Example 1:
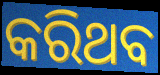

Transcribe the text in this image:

କରିଥବ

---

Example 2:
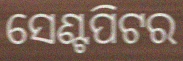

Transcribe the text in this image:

ସେଣ୍ଟପିଟର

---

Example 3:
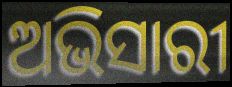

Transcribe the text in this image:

ଅଭିସାରୀ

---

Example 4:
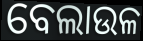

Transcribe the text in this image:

ବେଲାଉଳ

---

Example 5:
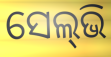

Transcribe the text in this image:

ସେଲ୍‌ଭି